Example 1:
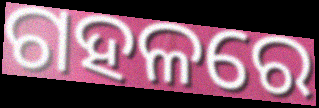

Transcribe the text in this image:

ଗହଳରେ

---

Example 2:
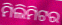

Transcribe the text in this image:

ମିଲିମିଟର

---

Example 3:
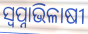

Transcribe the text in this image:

ସ୍ଵପ୍ନାଭିଳାଷୀ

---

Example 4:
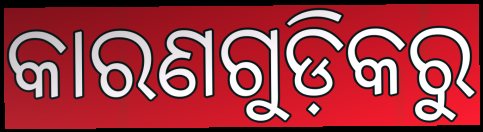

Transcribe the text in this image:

କାରଣଗୁଡ଼ିକରୁ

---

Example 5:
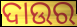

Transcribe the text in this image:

ଦାଉର